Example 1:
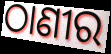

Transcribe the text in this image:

ଠାଣୀର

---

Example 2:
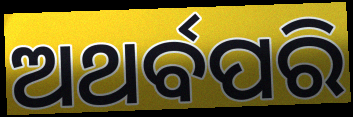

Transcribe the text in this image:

ଅଥର୍ବପରି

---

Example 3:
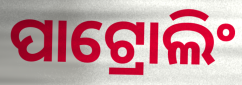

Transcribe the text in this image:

ପାଟ୍ରୋଲିଂ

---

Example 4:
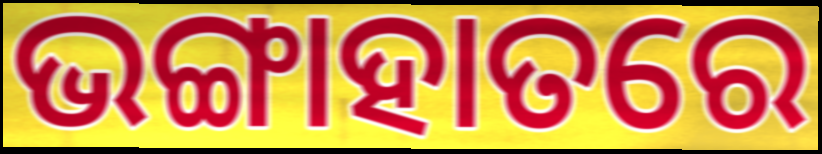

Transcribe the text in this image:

ଭଙ୍ଗାହାତରେ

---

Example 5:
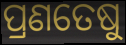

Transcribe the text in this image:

ପ୍ରଣତେଷୁ